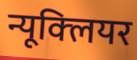
न्‍यूक्‍लियर